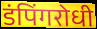
डंपिंगरोधी